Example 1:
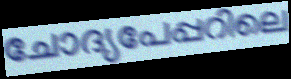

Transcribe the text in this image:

ചോദ്യപേപ്പറിലെ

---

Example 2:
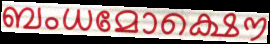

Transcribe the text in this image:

ബംധമോക്ഷൌ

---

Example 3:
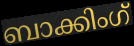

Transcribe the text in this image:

ബാക്കിംഗ്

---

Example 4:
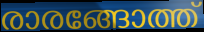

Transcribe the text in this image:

രാരങ്ങോത്ത്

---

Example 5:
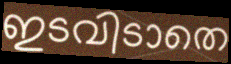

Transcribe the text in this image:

ഇടവിടാതെ